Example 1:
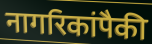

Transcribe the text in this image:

नागरिकांपैकी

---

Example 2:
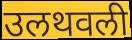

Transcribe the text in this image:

उलथवली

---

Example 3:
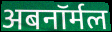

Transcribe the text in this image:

अबनॉर्मल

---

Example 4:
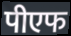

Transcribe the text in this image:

पीएफ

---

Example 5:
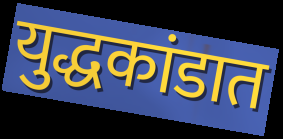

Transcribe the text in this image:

युद्धकांडात